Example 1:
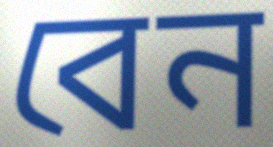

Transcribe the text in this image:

বেন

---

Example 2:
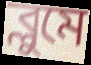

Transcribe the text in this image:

ব্লুমে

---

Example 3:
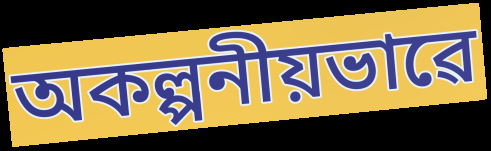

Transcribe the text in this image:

অকল্পনীয়ভাৱে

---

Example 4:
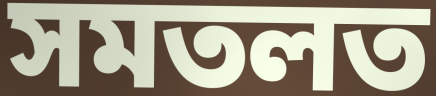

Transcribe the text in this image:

সমতলত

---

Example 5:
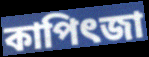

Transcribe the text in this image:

কাপিৎজা